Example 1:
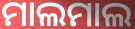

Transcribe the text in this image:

ମାଲମାଲ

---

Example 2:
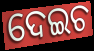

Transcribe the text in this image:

ଦେଇଚ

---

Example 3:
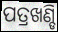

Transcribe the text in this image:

ପତ୍ରଖଣ୍ଡି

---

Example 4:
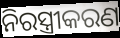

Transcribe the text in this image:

ନିରସ୍ତ୍ରୀକରଣ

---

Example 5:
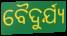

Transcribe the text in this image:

ବୈଦୁର୍ଯ୍ୟ